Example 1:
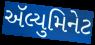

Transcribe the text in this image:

ઍલ્યુમિનેટ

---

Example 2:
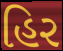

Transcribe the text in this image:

હિર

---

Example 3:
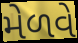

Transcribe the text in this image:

મેળવે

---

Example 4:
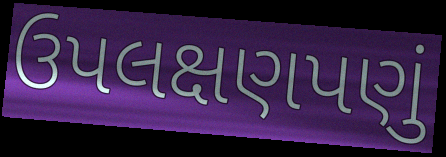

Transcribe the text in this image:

ઉપલક્ષણપણું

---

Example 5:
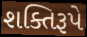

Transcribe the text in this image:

શક્તિરૂપે